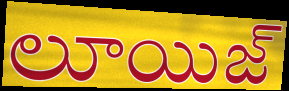
లూయిజ్